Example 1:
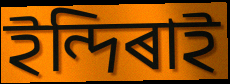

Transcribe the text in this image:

ইন্দিৰাই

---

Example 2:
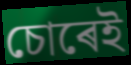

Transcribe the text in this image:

চোৰেই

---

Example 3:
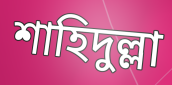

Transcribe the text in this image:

শাহিদুল্লা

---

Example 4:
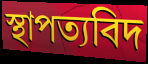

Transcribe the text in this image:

স্থাপত্যবিদ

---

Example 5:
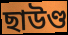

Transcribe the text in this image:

ছাউণ্ড